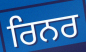
ਰਿਨਰ